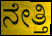
ನೇತ್ತಿ